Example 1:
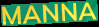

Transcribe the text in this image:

MANNA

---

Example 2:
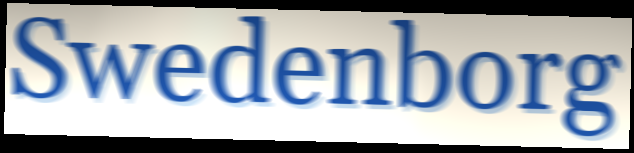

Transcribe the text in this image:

Swedenborg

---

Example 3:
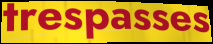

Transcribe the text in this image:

trespasses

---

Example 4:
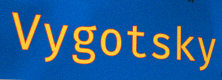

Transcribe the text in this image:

Vygotsky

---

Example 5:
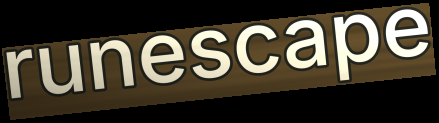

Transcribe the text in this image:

runescape